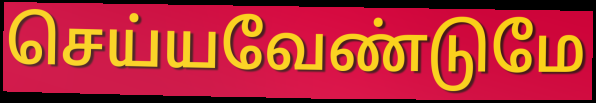
செய்யவேண்டுமே